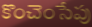
కొంచెంసేపు